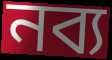
নব্য